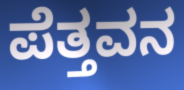
ಪೆತ್ತವನ